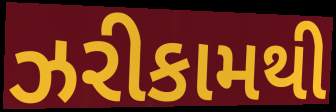
ઝરીકામથી